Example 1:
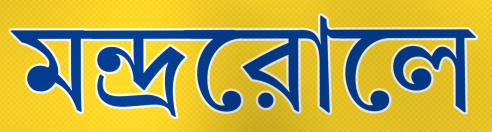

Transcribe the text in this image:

মন্দ্ররোলে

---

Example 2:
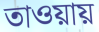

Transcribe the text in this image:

তাওয়ায়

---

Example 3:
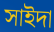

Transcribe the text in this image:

সাইদা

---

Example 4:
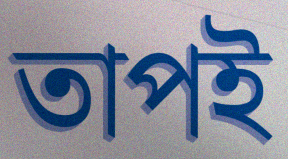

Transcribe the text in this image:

তাপই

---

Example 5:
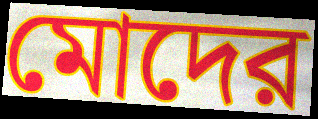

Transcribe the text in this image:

মোদের